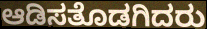
ಆಡಿಸತೊಡಗಿದರು